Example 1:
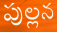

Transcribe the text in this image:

పుల్లన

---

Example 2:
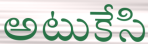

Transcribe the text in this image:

అటుకేసి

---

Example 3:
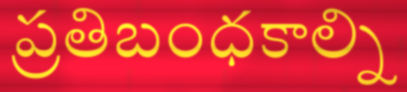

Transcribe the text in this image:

ప్రతిబంధకాల్ని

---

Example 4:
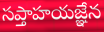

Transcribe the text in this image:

సప్తాహయజ్ఞేన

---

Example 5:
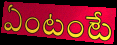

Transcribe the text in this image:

ఏంటంటే